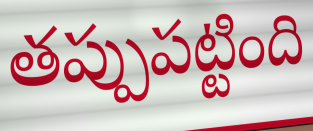
తప్పుపట్టింది